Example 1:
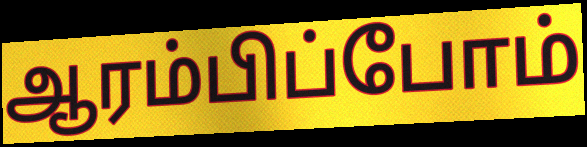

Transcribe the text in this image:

ஆரம்பிப்போம்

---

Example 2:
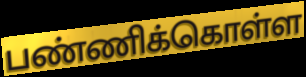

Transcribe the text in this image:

பண்ணிக்கொள்ள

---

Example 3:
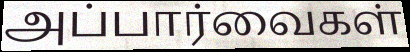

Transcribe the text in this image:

அப்பார்வைகள்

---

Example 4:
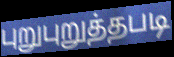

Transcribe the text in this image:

புறுபுறுத்தபடி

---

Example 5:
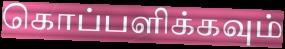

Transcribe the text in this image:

கொப்பளிக்கவும்